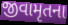
જીવામૃતના